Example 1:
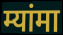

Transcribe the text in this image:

म्यांमा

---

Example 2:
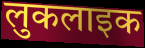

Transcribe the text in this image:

लुकलाइक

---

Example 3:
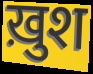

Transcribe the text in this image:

ख़ुश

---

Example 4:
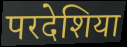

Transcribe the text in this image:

परदेशिया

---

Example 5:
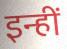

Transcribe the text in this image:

इन्‍हीं